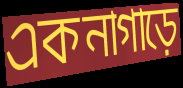
একনাগাড়ে